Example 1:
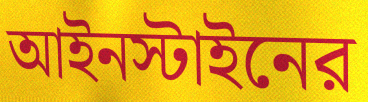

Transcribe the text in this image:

আইনস্টাইনের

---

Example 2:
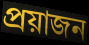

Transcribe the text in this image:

প্রয়াজন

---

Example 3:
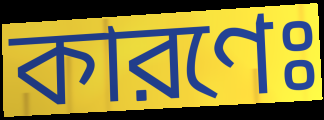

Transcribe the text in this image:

কারণেঃ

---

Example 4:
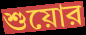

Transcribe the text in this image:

শুয়োর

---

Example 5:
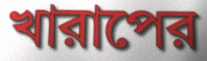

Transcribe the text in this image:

খারাপের